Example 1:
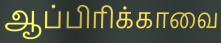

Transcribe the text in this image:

ஆப்பிரிக்காவை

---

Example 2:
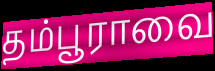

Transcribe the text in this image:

தம்பூராவை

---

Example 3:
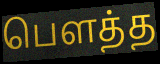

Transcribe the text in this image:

பெளத்த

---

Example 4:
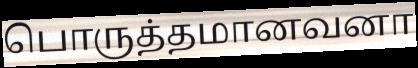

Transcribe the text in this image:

பொருத்தமானவனா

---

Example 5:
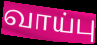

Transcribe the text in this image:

வாய்பு